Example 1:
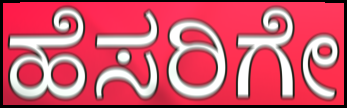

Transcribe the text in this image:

ಹೆಸರಿಗೇ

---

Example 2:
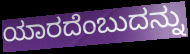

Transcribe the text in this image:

ಯಾರದೆಂಬುದನ್ನು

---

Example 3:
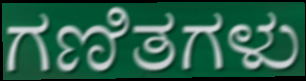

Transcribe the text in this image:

ಗಣಿತಗಳು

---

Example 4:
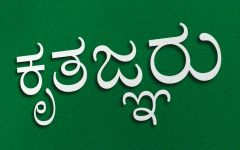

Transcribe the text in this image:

ಕೃತಜ್ಞರು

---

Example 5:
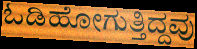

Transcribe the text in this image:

ಓಡಿಹೋಗುತ್ತಿದ್ದವು